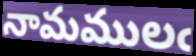
నామములఁ